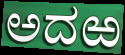
ಅದಱ